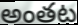
అంతట